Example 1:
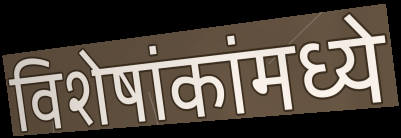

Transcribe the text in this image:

विशेषांकांमध्ये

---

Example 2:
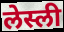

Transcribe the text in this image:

लेस्ली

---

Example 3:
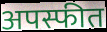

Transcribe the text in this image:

अपस्फीत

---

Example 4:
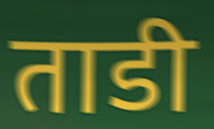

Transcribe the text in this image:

ताडी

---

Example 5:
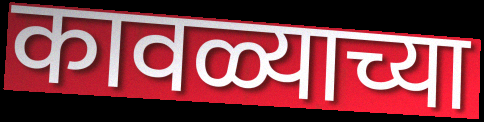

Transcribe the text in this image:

कावळ्याच्या